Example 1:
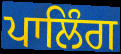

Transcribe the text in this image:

ਪਾਲਿੰਗ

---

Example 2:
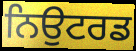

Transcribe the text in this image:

ਨਿਉਟਰਡ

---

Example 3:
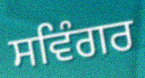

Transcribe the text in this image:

ਸਵਿੰਗਰ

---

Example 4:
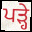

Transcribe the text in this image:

ਪੜ੍ਹੇ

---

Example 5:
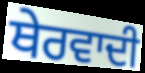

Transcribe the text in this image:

ਥੇਰਵਾਦੀ